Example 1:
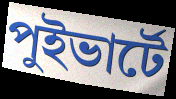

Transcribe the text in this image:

পুইভার্টে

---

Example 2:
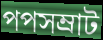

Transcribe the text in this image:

পপসম্রাট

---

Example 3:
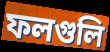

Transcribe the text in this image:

ফলগুলি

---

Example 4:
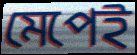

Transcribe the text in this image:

মেপেই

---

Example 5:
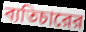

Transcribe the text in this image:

ব্যতিচারের